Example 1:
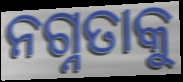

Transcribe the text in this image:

ନଗ୍ନତାକୁ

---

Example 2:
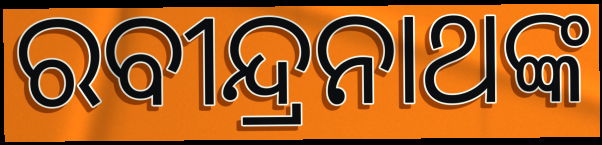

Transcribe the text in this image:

ରବୀନ୍ଦ୍ରନାଥଙ୍କ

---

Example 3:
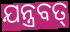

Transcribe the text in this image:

ଯନ୍ତ୍ରବତ୍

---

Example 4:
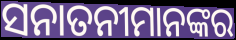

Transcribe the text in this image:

ସନାତନୀମାନଙ୍କର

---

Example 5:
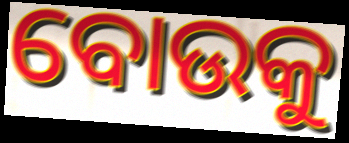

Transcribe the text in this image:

ବୋଉକୁ